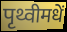
पृथ्वीमधें